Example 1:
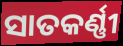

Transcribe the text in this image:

ସାତକର୍ଣ୍ଣୀ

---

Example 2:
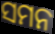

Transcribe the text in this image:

ସମନ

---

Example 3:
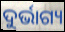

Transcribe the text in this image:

ଦୁର୍ଭାଗ୍ୟ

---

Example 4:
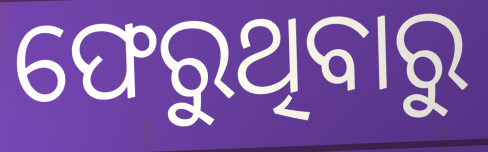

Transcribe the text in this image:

ଫେରୁଥିବାରୁ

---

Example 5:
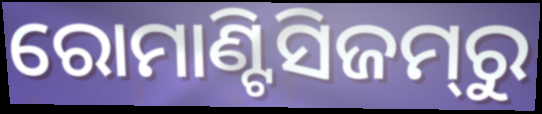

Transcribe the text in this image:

ରୋମାଣ୍ଟିସିଜମ୍‌ରୁ